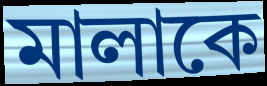
মালাকে